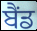
ਬੈੰਡ